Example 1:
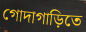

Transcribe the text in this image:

গোদাগাড়িতে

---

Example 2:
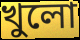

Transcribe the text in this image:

খুলো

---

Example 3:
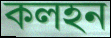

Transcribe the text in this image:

কলহন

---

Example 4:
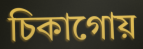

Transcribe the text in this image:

চিকাগোয়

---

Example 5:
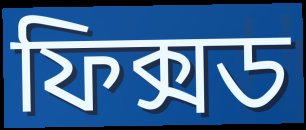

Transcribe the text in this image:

ফিক্সড